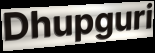
Dhupguri